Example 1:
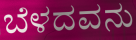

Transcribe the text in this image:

ಬೆಳದವನು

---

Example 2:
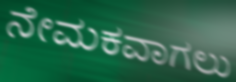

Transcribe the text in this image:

ನೇಮಕವಾಗಲು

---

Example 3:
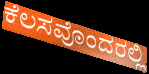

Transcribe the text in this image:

ಕೆಲಸವೊಂದರಲ್ಲಿ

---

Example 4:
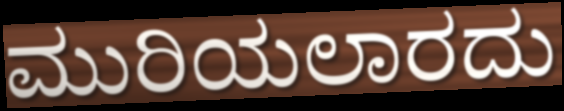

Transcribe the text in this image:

ಮುರಿಯಲಾರದು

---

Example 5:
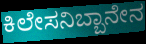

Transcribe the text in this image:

ಕಿಲೇಸನಿಬ್ಬಾನೇನ